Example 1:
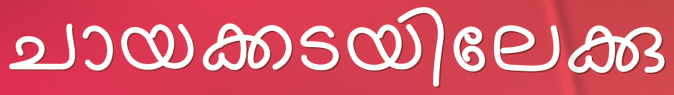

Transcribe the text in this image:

ചായക്കടയിലേക്കു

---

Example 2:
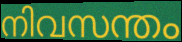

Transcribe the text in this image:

നിവസന്തം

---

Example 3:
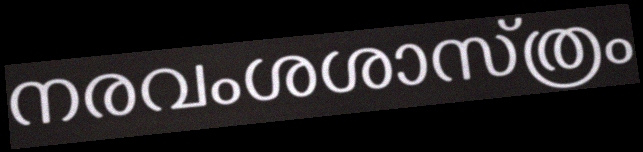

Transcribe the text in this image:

നരവംശശാസ്‌ത്രം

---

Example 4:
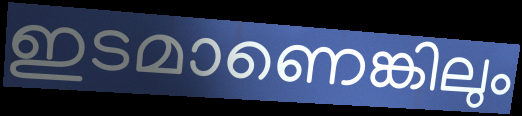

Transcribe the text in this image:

ഇടമാണെങ്കിലും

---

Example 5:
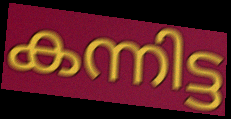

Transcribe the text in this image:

കന്നിട്ട